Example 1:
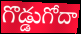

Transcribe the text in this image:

గొడ్డుగోదా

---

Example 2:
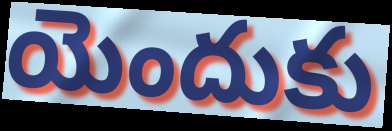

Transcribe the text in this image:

యెందుకు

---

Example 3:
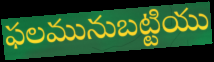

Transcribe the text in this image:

ఫలమునుబట్టియు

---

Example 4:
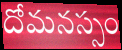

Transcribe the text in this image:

దోమనస్సం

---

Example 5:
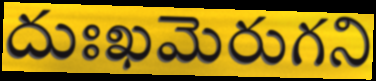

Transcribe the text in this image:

దుఃఖమెరుగని